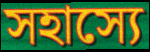
সহাস্যে